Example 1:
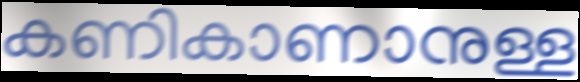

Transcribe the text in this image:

കണികാണാനുള്ള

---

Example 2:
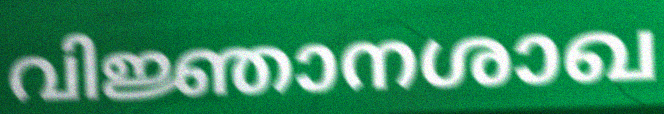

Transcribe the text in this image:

വിജ്ഞാനശാഖ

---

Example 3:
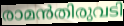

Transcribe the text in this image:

രാമൻതിരുവടി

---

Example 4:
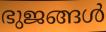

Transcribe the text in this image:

ഭുജങ്ങൾ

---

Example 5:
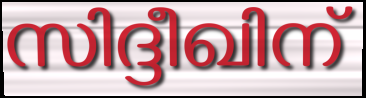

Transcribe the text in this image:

സിദ്ദീഖിന്